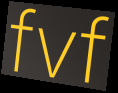
fvf